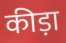
कीड़ा